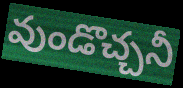
వుండొచ్చనీ